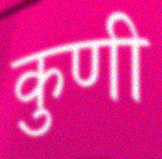
कुणी